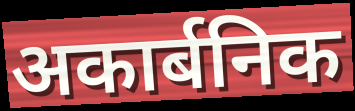
अकार्बनिक